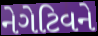
નેગેટિવને